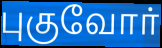
புகுவோர்